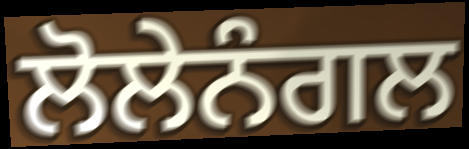
ਲੋਲੇਨੰਗਲ